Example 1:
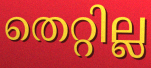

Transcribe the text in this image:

തെറ്റില്ല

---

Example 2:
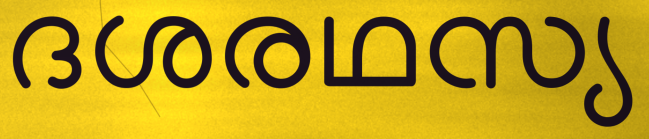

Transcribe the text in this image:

ദശരഥസ്യ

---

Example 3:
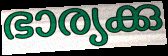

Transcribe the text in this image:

ഭാര്യക്കു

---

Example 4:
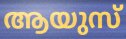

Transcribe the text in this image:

ആയുസ്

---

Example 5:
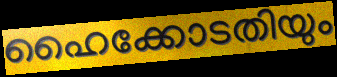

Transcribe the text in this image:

ഹൈക്കോടതിയും